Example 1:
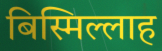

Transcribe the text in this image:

बिस्मिल्लाह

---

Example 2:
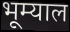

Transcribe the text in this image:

भूम्याल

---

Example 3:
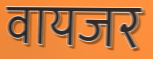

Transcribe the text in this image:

वायजर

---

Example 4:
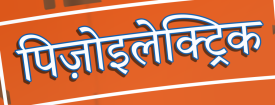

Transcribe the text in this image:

पिज़ोइलेक्ट्रिक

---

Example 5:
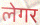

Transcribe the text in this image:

लेगर